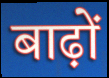
बाढ़ों